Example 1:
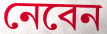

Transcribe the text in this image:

নেবেন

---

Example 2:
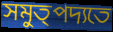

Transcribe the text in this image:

সমুত্পদ্যতে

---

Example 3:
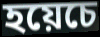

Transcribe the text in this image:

হয়েচে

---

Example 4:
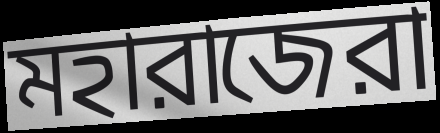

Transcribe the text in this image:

মহারাজেরা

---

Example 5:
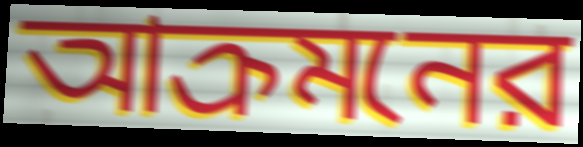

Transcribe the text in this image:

আক্রমনের